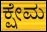
ಕ್ಷೇಮ